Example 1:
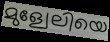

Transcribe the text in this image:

മുള്വേലിയെ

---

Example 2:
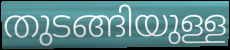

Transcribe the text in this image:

തുടങ്ങിയുള്ള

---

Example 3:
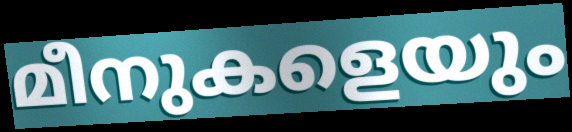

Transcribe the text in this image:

മീനുകളെയും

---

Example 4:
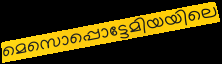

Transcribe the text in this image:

മെസൊപ്പൊട്ടേമിയയിലെ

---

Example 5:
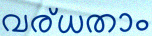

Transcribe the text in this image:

വര്ധതാം